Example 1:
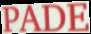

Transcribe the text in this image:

PADE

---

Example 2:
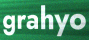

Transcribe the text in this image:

grahyo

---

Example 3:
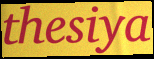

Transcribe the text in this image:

thesiya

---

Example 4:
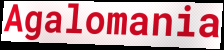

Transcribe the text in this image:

Agalomania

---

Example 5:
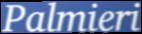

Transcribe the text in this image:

Palmieri